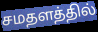
சமதளத்தில்